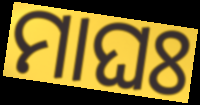
ମାଘଃ